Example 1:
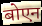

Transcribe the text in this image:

बोएन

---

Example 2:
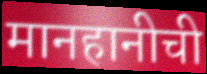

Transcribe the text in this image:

मानहानीची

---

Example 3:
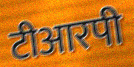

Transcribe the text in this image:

टीआरपी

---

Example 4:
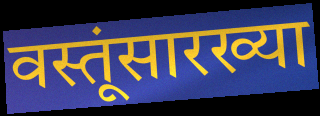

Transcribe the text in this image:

वस्तूंसारख्या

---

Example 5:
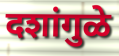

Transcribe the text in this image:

दशांगुळे